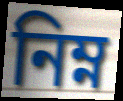
নিম্ন